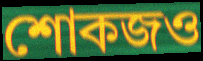
শোকজও